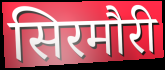
सिरमौरी